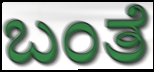
ಬಂತೆ